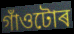
গাঁওটোৰ